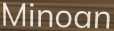
Minoan